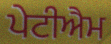
ਪੇਟੀਐਮ